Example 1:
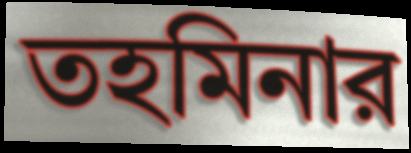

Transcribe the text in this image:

তহমিনার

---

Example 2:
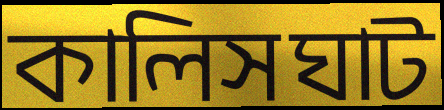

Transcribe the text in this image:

কালিসঘাট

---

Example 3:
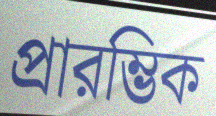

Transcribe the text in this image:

প্রারম্ভিক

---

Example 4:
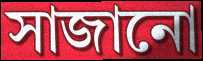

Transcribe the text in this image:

সাজানো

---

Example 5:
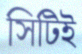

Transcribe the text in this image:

সিটিই